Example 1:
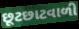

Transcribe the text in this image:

છૂટછાટવાળી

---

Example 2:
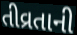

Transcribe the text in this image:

તીવ્રતાની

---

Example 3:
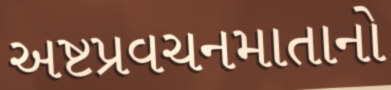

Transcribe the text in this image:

અષ્ટપ્રવચનમાતાનો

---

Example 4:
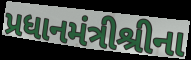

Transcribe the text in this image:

પ્રધાનમંત્રીશ્રીના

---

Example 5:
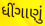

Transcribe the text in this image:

ધીંગાણું